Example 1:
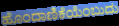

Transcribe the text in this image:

ಹೊಂದಾಣಿಕೆಯೆಂಬುದು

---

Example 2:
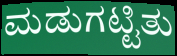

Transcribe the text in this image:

ಮಡುಗಟ್ಟಿತು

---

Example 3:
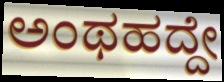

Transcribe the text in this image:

ಅಂಥಹದ್ದೇ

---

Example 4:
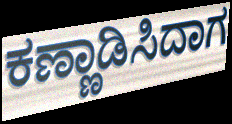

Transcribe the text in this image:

ಕಣ್ಣಾಡಿಸಿದಾಗ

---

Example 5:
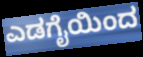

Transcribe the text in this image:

ಎಡಗೈಯಿಂದ